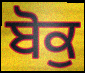
ਬੋਕੁ